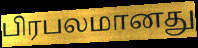
பிரபலமானது